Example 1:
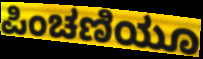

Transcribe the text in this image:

ಪಿಂಚಣಿಯೂ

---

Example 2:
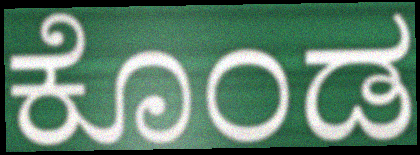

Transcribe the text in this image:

ಕೊಂಡ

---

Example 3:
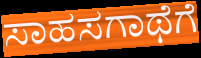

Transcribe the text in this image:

ಸಾಹಸಗಾಥೆಗೆ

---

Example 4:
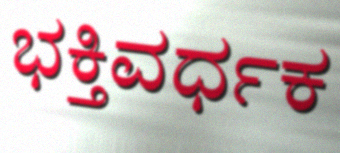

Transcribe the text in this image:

ಭಕ್ತಿವರ್ಧಕ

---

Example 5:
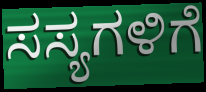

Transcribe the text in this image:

ಸಸ್ಯಗಳಿಗೆ